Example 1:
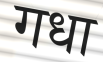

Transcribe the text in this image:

गधा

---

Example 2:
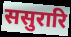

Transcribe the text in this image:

ससुरारि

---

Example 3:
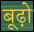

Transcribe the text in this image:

बूढ़ो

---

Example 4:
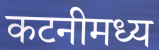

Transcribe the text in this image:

कटनीमध्य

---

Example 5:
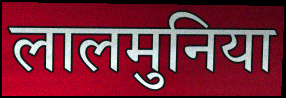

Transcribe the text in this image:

लालमुनिया